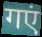
गएं